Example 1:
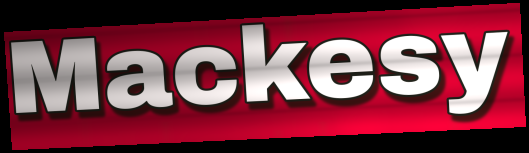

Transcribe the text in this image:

Mackesy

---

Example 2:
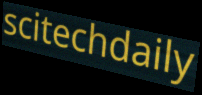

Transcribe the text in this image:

scitechdaily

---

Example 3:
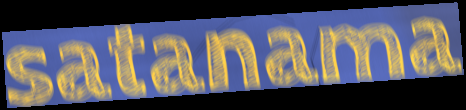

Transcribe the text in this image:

satanama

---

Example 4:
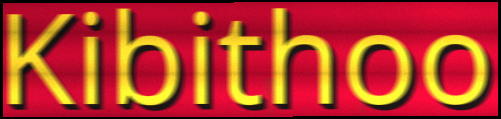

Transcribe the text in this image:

Kibithoo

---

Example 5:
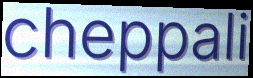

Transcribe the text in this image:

cheppali